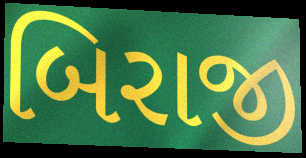
બિરાજી